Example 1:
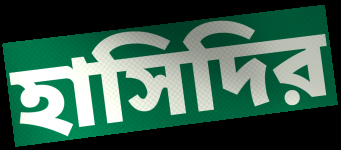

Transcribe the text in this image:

হাসিদির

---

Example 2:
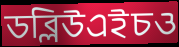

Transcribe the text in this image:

ডব্লিউএইচও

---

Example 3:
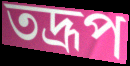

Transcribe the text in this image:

তদ্রূপ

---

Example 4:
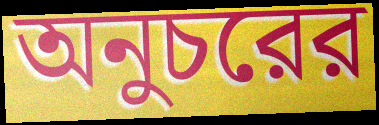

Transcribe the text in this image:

অনুচরের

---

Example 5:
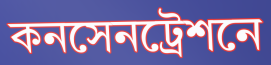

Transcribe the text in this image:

কনসেনট্রেশনে